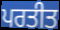
ਪਰਤੀਤ